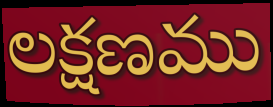
లక్షణము